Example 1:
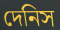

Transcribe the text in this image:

দেনিস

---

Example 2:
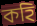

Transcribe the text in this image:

কহি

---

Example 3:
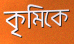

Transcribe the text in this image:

কৃমিকে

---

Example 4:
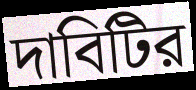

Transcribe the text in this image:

দাবিটির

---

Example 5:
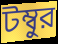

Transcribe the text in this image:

টম্বুর